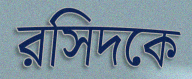
রসিদকে